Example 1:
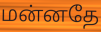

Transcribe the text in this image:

மன்னதே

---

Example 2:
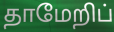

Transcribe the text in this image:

தாமேறிப்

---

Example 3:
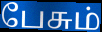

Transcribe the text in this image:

பேசும்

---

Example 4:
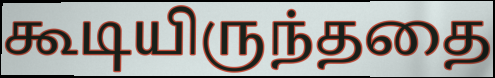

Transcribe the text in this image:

கூடியிருந்ததை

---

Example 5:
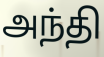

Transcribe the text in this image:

அந்தி